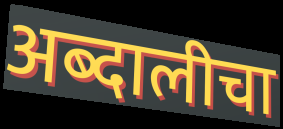
अब्दालीचा